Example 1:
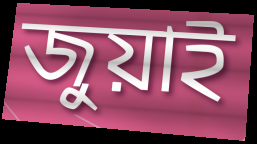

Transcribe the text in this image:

জুয়াই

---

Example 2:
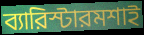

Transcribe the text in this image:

ব্যারিস্টারমশাই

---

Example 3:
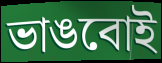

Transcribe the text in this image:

ভাঙবোই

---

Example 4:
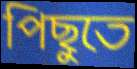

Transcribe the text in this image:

পিছুতে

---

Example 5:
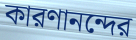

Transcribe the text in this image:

কারণানন্দের